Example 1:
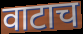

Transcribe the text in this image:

वाटाच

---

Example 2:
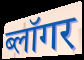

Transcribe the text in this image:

ब्लॉगर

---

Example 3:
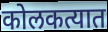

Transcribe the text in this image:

कोलकत्यात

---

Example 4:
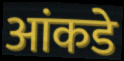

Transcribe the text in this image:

आंकडे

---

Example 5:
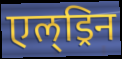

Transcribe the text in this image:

एल्ड्रिन